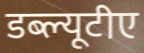
डब्ल्यूटीए